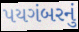
પયગંબરનું